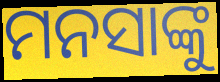
ମନସାଙ୍କୁ